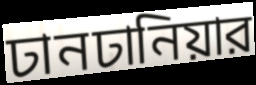
ঢানঢানিয়ার